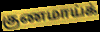
குணமாய்க்